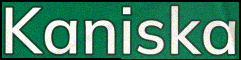
Kaniska